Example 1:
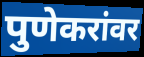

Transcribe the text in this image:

पुणेकरांवर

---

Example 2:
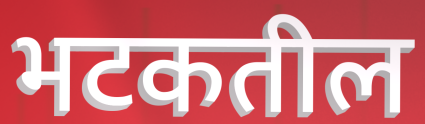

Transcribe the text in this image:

भटकतील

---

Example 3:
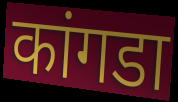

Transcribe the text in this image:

कांगडा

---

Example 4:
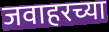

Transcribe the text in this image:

जवाहरच्या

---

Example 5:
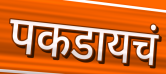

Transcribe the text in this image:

पकडायचं